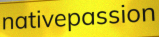
nativepassion